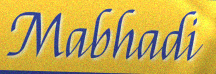
Mabhadi